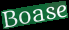
Boase